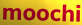
moochi